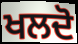
ਖਲਦੋ